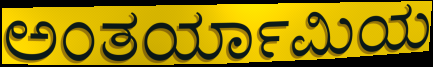
ಅಂತರ್ಯಾಮಿಯ